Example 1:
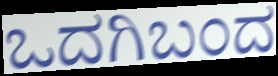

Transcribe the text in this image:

ಒದಗಿಬಂದ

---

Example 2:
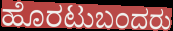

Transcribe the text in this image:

ಹೊರಟುಬಂದರು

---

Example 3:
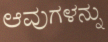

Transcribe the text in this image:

ಆವುಗಳನ್ನು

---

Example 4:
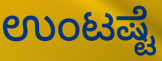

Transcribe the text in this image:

ಉಂಟಷ್ಟೆ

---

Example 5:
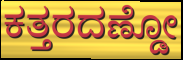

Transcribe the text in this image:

ಕತ್ತರದಣ್ಡೋ